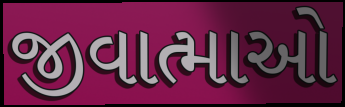
જીવાત્માઓ